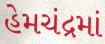
હેમચંદ્રમાં